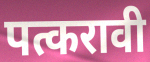
पत्करावी